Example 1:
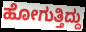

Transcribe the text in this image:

ಹೋಗುತ್ತಿದ್ದು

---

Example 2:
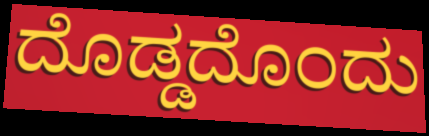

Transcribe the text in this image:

ದೊಡ್ಡದೊಂದು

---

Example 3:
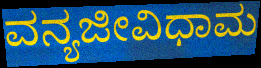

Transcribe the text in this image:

ವನ್ಯಜೀವಿಧಾಮ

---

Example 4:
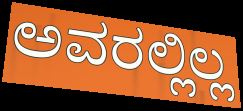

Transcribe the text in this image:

ಅವರಲ್ಲಿಲ್ಲ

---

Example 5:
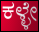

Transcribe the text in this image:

ಕಳ್ಳೇ